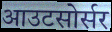
आउटसोर्सर